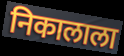
निकालाला